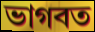
ভাগবত